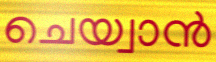
ചെയ്വാൻ